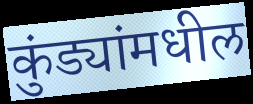
कुंड्यांमधील